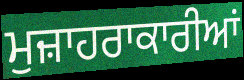
ਮੁਜ਼ਾਹਰਾਕਾਰੀਆਂ